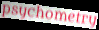
psychometry